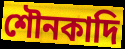
শৌনকাদি